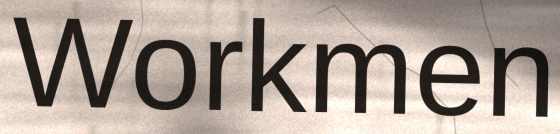
Workmen